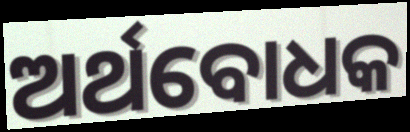
ଅର୍ଥବୋଧକ